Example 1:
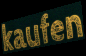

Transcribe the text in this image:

kaufen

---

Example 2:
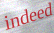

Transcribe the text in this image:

indeed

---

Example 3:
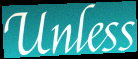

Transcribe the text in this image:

Unless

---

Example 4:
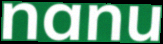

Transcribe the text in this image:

nanu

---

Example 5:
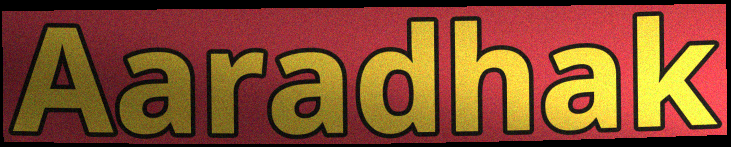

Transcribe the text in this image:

Aaradhak